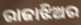
ରାଜାଝିଅର